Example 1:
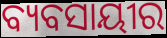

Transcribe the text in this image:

ବ୍ୟବସାୟୀର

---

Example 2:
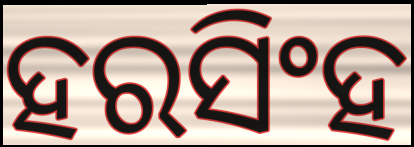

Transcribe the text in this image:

ହରସିଂହ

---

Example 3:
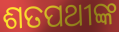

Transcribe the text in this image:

ଶତପଥୀଙ୍କ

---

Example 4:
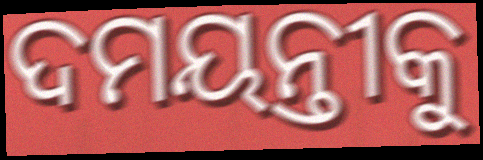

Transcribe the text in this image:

ଦମୟନ୍ତୀକୁ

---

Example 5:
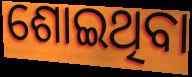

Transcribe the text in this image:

ଶୋଇଥିବା